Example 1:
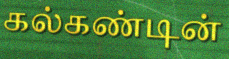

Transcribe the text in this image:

கல்கண்டின்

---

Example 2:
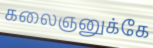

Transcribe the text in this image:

கலைஞனுக்கே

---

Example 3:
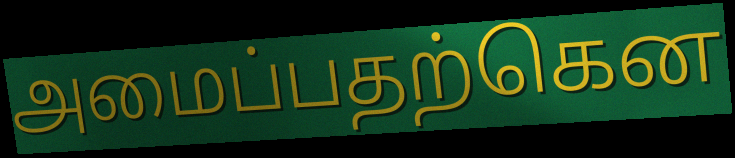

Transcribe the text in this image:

அமைப்பதற்கென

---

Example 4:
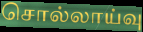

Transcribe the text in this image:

சொல்லாய்வு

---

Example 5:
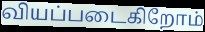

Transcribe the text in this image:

வியப்படைகிறோம்